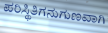
ಪರಿಸ್ಥಿತಿಗನುಗುಣವಾಗಿ